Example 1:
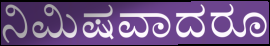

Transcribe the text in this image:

ನಿಮಿಷವಾದರೂ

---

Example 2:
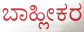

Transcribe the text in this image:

ಬಾಹ್ಲೀಕರ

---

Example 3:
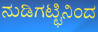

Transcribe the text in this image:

ನುಡಿಗಟ್ಟಿನಿಂದ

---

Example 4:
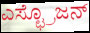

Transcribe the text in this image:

ಎಸ್ಟ್ರೊಜನ್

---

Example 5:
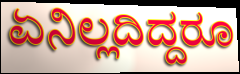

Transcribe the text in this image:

ಏನಿಲ್ಲದಿದ್ದರೂ